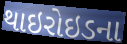
થાઇરોઇડના